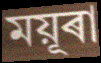
ময়ূৰা